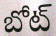
బోట్